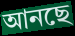
আনছে